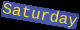
Saturday